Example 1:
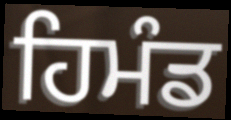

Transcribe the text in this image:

ਹਿਮੰਡ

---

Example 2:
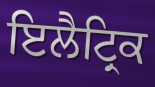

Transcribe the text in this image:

ਇਲੈਟ੍ਰਿਕ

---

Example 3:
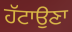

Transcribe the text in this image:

ਹੱਟਾਉਣਾ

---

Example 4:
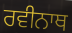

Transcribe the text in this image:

ਰਵੀਨਾਥ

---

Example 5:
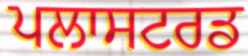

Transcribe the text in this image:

ਪਲਾਸਟਰਡ